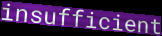
insufficient